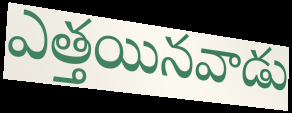
ఎత్తయినవాడు